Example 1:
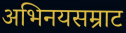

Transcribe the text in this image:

अभिनयसम्राट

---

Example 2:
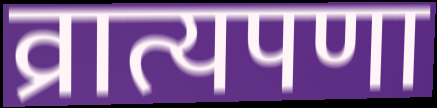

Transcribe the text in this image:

व्रात्यपणा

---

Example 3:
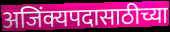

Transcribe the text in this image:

अजिंक्यपदासाठीच्या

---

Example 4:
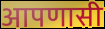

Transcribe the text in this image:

आपणासी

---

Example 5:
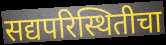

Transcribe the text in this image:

सद्यपरिस्थितीचा